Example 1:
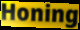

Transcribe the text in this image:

Honing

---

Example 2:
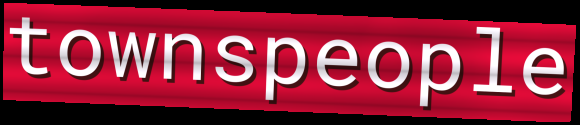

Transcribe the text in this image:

townspeople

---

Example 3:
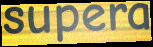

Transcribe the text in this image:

supera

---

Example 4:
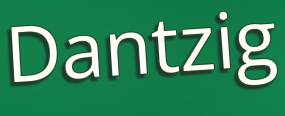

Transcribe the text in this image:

Dantzig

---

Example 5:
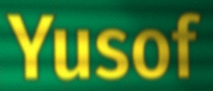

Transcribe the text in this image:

Yusof